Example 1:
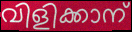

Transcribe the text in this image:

വിളിക്കാന്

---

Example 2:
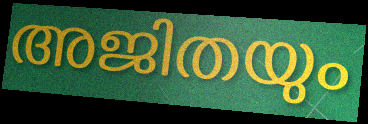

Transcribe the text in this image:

അജിതയും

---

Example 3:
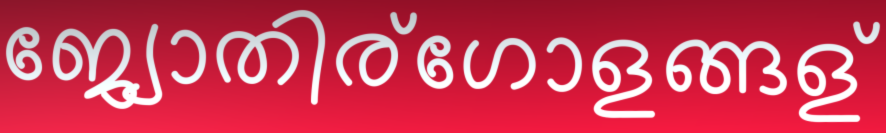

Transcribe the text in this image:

ജ്യോതിര്ഗോളങ്ങള്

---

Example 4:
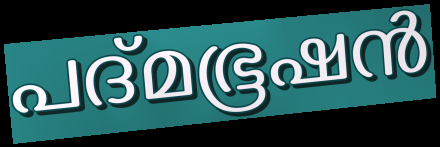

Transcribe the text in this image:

പദ്മഭൂഷൻ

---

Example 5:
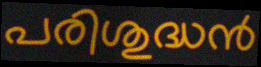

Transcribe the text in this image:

പരിശുദ്ധൻ